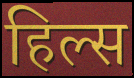
हिल्स